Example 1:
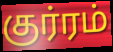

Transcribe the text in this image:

குர்ரம்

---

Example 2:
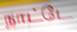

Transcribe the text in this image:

நாட்டே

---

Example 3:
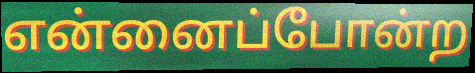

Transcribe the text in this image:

என்னைப்போன்ற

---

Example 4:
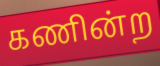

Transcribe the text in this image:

கணின்ற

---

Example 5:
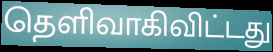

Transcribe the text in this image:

தெளிவாகிவிட்டது